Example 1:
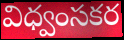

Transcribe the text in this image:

విధ్వంసకర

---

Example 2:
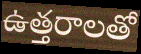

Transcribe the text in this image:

ఉత్తరాలతో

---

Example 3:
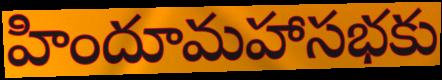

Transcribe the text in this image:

హిందూమహాసభకు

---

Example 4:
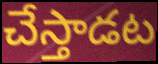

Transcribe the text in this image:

చేస్తాడట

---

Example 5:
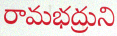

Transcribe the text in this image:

రామభద్రుని